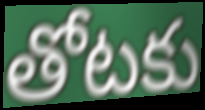
తోటకు